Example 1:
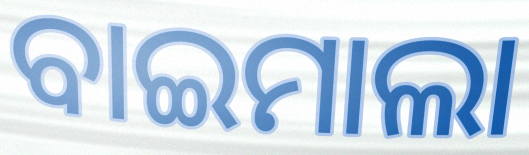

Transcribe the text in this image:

ବାଇମାଲା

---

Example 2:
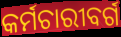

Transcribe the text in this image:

କର୍ମଚାରୀବର୍ଗ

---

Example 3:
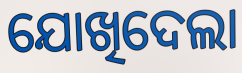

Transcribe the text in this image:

ଯୋଖିଦେଲା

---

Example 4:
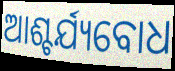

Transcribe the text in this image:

ଆଶ୍ଚର୍ଯ୍ୟବୋଧ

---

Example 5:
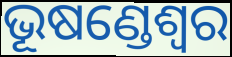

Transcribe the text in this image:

ଭୂଷଣ୍ଡେଶ୍ଵର